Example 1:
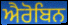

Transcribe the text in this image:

ਐਰੋਬਿਨ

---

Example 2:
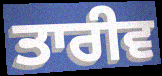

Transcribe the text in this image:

ਤਾਰੀਵ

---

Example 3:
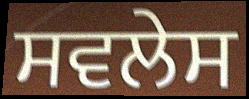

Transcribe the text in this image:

ਸਵਲੇਸ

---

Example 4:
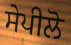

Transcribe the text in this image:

ਸੇਪੀਲੋ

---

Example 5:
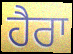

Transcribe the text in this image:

ਹੈਰਾ